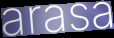
arasa